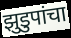
झुडुपांचा